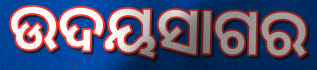
ଉଦୟସାଗର